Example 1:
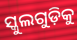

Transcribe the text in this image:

ସ୍କୁଲଗୁଡ଼ିକୁ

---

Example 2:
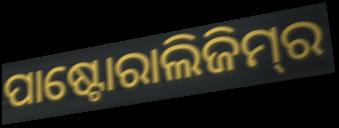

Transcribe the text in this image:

ପାଷ୍ଟୋରାଲିଜିମ୍‌ର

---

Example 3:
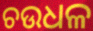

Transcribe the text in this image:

ଚଉଧଳ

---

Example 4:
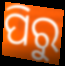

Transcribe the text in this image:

ପିରୁ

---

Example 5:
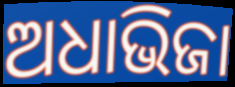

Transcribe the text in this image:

ଅଧାଭିଜା